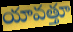
యావత్తూ